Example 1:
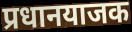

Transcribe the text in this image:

प्रधानयाजक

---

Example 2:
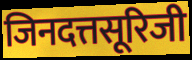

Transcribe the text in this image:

जिनदत्तसूरिजी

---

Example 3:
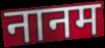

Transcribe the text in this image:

नानम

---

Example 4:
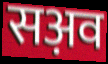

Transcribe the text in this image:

सअ़व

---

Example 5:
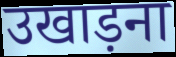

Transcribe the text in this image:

उखाड़ना